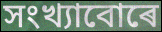
সংখ্যাবোৰে